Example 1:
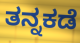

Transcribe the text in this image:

ತನ್ನಕಡೆ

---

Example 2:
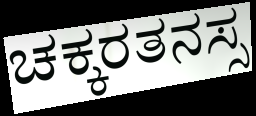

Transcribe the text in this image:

ಚಕ್ಕರತನಸ್ಸ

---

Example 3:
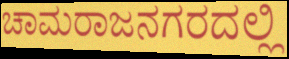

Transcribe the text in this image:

ಚಾಮರಾಜನಗರದಲ್ಲಿ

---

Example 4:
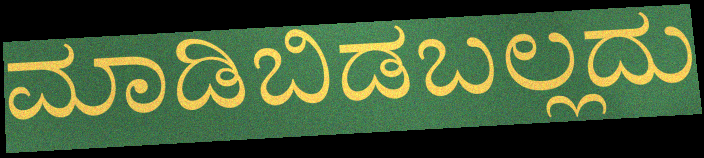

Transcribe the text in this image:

ಮಾಡಿಬಿಡಬಲ್ಲದು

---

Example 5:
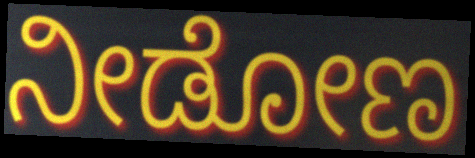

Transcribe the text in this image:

ನೀಡೋಣ